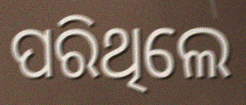
ପରିଥିଲେ